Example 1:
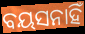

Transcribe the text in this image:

ବୟସନାହିଁ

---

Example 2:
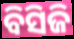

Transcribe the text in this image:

ବିସିଜି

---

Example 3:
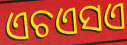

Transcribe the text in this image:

ଏଚଏସଏ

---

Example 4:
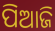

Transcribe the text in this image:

ପିଆଜି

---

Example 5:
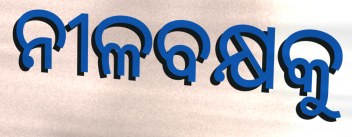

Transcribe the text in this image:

ନୀଳବକ୍ଷକୁ